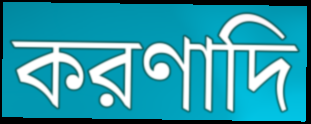
করণাদি